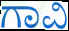
ಗಾವಿ